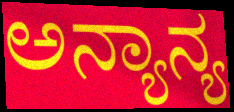
ಅನ್ಯಾನ್ಯ